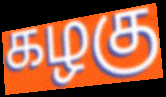
கழகு